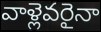
వాళ్లెవరైనా